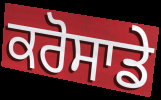
ਕਰੋਸਾਡੇ